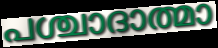
പശ്ചാദാത്മാ